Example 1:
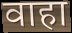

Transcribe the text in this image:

वाहा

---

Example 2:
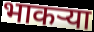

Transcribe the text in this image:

भाकऱ्या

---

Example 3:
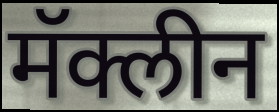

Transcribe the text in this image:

मॅक्लीन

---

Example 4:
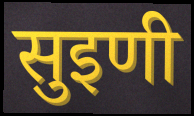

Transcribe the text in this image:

सुइणी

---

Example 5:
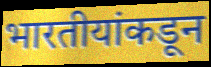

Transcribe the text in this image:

भारतीयांकडून